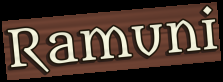
Ramuni